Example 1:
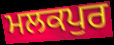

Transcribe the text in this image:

ਮਲਕਪੁਰ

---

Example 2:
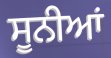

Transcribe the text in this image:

ਸੂਨੀਆਂ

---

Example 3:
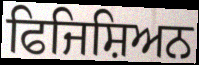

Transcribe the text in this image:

ਫਿਜਿਸ਼ਿਅਨ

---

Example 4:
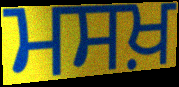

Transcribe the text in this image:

ਮਸਖ਼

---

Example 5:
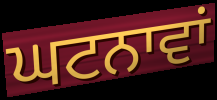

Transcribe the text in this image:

ਘਟਨਾਵਾਂ